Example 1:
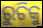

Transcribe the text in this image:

ରୁଚିକୁ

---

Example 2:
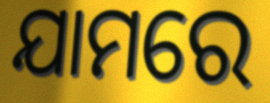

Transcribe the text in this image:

ଯାମରେ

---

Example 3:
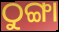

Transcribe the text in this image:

ଠୁଙ୍ଗା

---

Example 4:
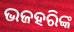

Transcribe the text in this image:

ଭଜହରିଙ୍କ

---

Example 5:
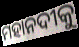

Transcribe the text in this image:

ମହାନଦୀକୁ